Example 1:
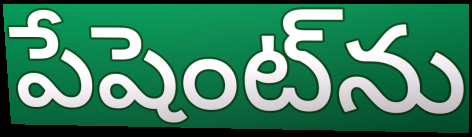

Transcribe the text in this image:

పేషెంట్‌ను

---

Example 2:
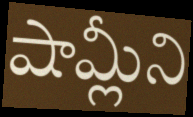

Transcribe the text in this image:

షామ్లీని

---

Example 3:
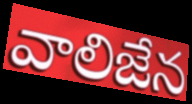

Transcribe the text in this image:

వాలిజేన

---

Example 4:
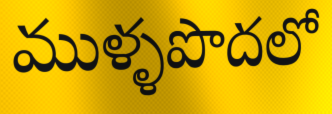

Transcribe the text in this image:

ముళ్ళపొదలో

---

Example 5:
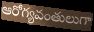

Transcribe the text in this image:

ఆరోగ్యవంతులుగా